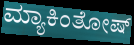
ಮ್ಯಾಕಿಂತೋಷ್